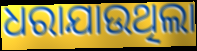
ଧରାଯାଉଥିଲା